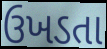
ઉખડતા